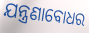
ଯନ୍ତ୍ରଣାବୋଧର